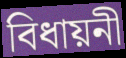
বিধায়নী